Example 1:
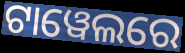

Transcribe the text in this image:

ଟାୱେଲରେ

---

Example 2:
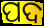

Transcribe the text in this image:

ପଦ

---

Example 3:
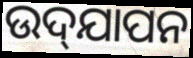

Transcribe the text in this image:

ଉଦ୍‌ଯାପନ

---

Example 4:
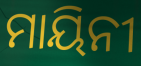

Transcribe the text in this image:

ମାୟିନୀ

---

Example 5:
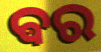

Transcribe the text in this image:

ଵର